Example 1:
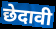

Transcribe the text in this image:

छेदावी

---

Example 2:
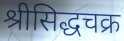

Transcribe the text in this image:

श्रीसिद्धचक्र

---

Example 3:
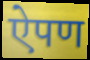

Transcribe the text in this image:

ऐपण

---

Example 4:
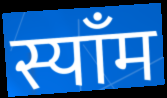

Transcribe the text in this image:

स्याँम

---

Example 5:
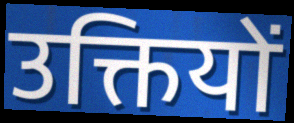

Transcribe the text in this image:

उक्तियों